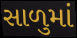
સાળુમાં